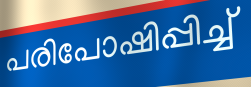
പരിപോഷിപ്പിച്ച്